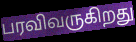
பரவிவருகிறது